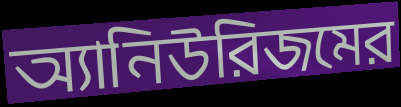
অ্যানিউরিজমের